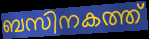
ബസിനകത്ത്